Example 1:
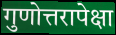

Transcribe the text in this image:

गुणोत्तरापेक्षा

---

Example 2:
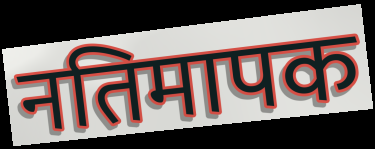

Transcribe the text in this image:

नतिमापक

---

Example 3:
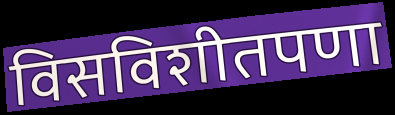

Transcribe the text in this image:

विसविशीतपणा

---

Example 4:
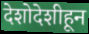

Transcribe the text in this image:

देशोदेशीहून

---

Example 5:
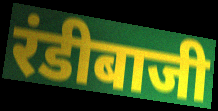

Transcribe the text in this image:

रंडीबाजी